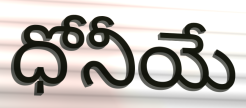
ధోనీయే